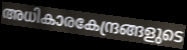
അധികാരകേന്ദ്രങ്ങളുടെ